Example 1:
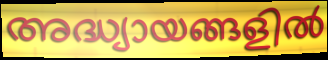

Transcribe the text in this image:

അദ്ധ്യായങ്ങളിൽ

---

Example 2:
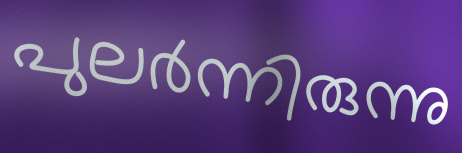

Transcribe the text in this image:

പുലർന്നിരുന്നു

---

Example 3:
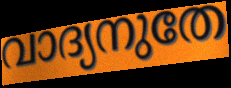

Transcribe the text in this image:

വാദ്യനുതേ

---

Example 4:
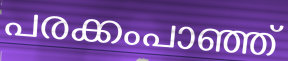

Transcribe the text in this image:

പരക്കംപാഞ്ഞ്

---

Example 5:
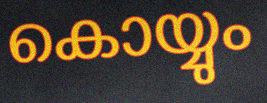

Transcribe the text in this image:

കൊയ്യും